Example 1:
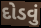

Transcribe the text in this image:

દોડવું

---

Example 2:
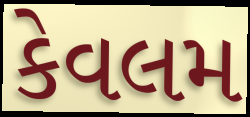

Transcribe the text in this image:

કેવલમ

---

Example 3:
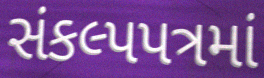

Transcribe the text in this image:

સંકલ્પપત્રમાં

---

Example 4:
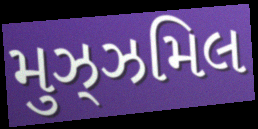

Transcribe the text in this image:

મુઝ્ઝમિલ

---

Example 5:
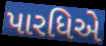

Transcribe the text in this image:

પારધિએ